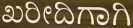
ಖರೀದಿಗಾಗಿ